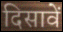
दिसावें